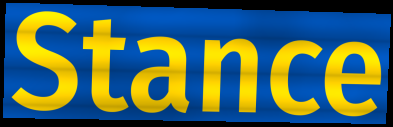
Stance